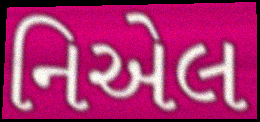
નિએલ